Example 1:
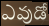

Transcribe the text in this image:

ఎవుడో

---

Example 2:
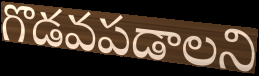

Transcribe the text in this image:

గొడవపడాలని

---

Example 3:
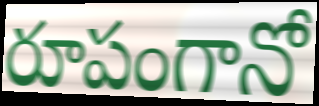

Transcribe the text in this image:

రూపంగానో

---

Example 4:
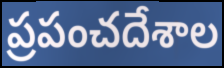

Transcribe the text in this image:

ప్రపంచదేశాల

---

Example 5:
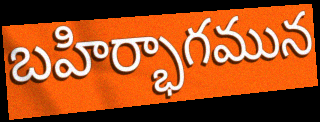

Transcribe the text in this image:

బహిర్భాగమున